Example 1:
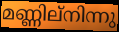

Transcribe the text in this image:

മണ്ണില്നിന്നു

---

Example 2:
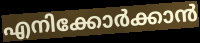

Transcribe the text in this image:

എനിക്കോർക്കാൻ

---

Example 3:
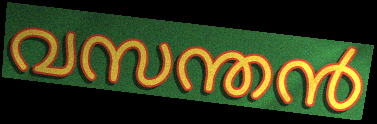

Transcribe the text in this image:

വസന്തൻ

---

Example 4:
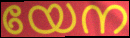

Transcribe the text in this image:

യേന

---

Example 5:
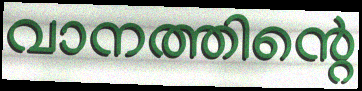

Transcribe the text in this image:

വാനത്തിന്റെ